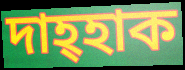
দাহ্হাক